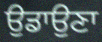
ਉਡਾਉਣਾ